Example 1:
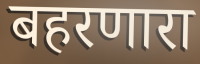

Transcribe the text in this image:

बहरणारा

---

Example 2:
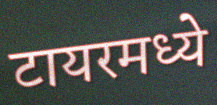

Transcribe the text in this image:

टायरमध्ये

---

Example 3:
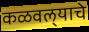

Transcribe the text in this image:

कळवल्याचे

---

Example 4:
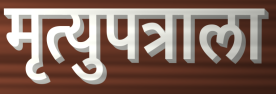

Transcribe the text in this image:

मृत्युपत्राला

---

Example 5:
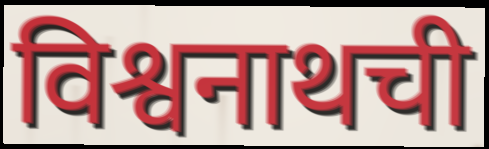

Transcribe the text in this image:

विश्वनाथची